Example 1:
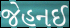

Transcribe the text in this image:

જેહનઈ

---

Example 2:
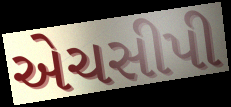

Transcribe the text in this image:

એચસીપી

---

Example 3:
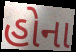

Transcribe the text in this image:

હોના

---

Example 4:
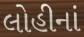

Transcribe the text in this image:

લોહીનાં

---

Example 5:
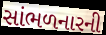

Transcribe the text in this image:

સાંભળનારની